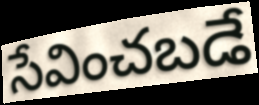
సేవించబడే